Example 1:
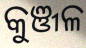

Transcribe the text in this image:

କୁଞ୍ଜଳ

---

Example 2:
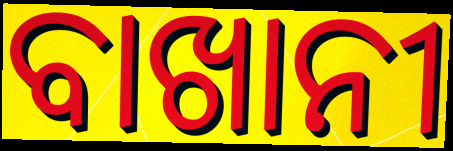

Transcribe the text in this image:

ବାଖାନୀ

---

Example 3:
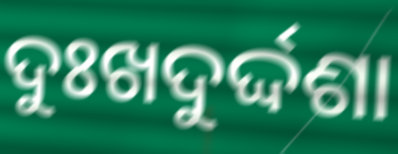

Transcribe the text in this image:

ଦୁଃଖଦୁର୍ଦ୍ଦଶା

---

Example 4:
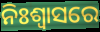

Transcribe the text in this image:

ନିଃଶ୍ଵାସରେ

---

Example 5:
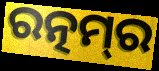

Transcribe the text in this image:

ରତ୍ନମ୍‌ର